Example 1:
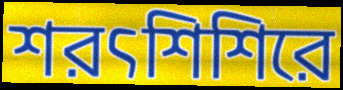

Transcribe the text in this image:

শরৎশিশিরে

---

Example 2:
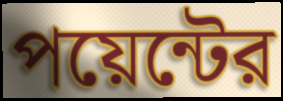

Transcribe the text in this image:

পয়েন্টের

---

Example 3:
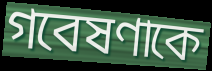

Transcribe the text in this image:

গবেষণাকে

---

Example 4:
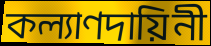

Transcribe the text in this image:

কল্যাণদায়িনী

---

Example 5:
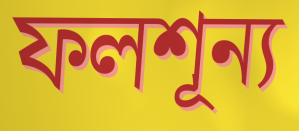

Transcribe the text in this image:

ফলশূন্য